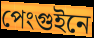
পেংগুইনে